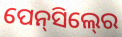
ପେନ୍‍ସିଲ୍‍ରେ